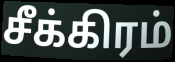
சீக்கிரம்